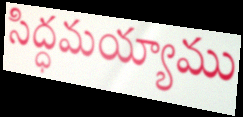
సిద్ధమయ్యాము